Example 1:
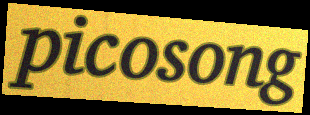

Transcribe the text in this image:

picosong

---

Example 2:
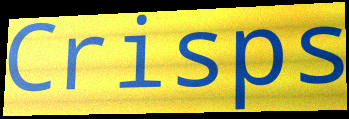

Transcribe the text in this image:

Crisps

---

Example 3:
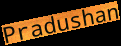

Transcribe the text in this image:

Pradushan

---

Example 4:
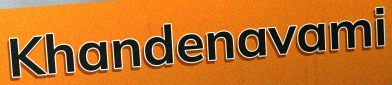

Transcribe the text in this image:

Khandenavami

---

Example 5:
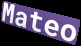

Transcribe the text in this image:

Mateo